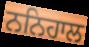
ਨਨਿਹਾਲ